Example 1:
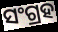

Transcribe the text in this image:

ସଂଗ୍ରହ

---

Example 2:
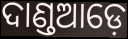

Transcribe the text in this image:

ଦାଣ୍ଡଆଡ଼େ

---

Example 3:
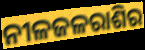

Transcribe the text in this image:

ନୀଳଜଳରାଶିର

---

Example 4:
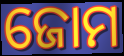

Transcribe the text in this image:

ଜୋମ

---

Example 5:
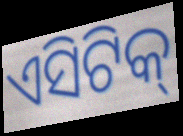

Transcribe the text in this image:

ଏସିଟିକ୍